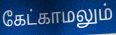
கேட்காமலும்